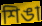
শিঙা